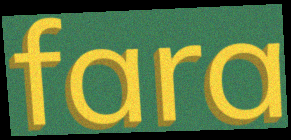
fara